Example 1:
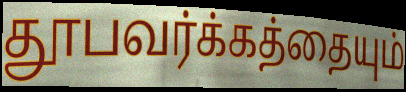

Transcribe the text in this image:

தூபவர்க்கத்தையும்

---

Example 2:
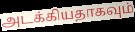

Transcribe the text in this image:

அடக்கியதாகவும்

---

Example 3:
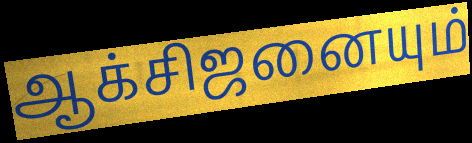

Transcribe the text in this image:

ஆக்சிஜனையும்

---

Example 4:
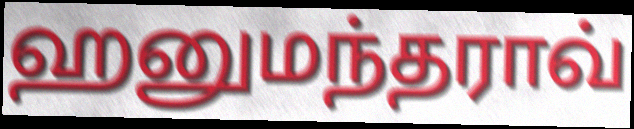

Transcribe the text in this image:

ஹனுமந்தராவ்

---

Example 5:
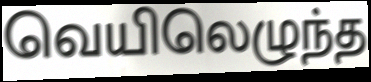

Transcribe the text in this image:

வெயிலெழுந்த